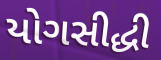
યોગસીદ્ધી